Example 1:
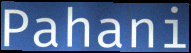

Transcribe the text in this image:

Pahani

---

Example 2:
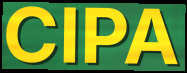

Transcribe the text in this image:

CIPA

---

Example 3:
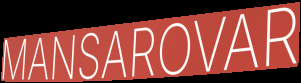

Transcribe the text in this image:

MANSAROVAR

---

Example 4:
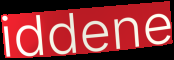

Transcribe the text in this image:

iddene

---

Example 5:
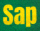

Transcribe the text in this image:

Sap